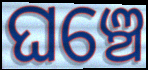
ଘଞ୍ଚେ